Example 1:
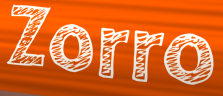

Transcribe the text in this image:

Zorro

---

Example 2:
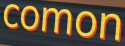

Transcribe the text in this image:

comon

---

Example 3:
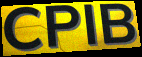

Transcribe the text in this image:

CPIB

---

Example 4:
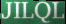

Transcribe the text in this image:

JILQL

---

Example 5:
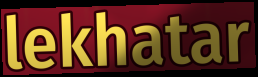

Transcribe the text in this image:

lekhatar